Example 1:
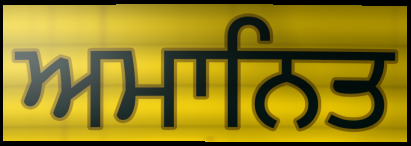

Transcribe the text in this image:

ਅਮਾਨਿਤ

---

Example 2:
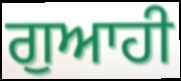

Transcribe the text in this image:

ਗੁਆਹੀ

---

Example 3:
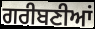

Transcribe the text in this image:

ਗਰੀਬਣੀਆਂ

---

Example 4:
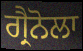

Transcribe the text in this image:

ਗ੍ਰੈਨੋਲਾ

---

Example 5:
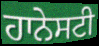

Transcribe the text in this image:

ਹਾਨੇਸਟੀ